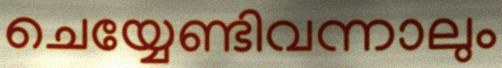
ചെയ്യേണ്ടിവന്നാലും